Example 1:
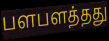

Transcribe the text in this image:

பளபளத்தது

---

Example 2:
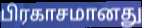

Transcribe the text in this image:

பிரகாசமானது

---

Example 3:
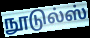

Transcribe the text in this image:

நூடுல்ஸ்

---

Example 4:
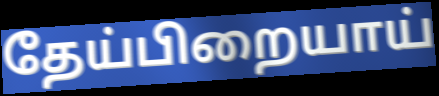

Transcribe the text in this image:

தேய்பிறையாய்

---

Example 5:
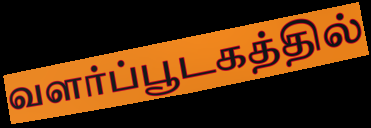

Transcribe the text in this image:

வளர்ப்பூடகத்தில்